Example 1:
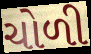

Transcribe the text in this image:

ચોળી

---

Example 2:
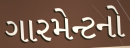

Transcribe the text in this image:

ગારમેન્ટનો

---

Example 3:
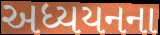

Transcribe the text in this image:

અધ્યયનના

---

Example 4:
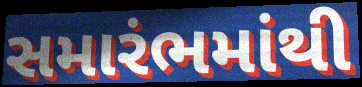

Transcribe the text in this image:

સમારંભમાંથી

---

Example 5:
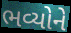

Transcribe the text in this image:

ભવ્યોને